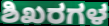
ಶಿಖರಗಳ